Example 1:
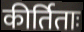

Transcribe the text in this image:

कीर्तिताः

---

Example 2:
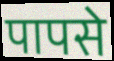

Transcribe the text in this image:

पापसे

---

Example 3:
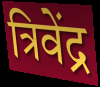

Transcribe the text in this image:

त्रिवेंद्र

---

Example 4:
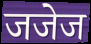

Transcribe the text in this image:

जजेज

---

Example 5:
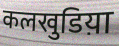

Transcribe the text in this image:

कलखुडिय़ा